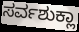
ಸರ್ವಶುಕ್ಲಾ